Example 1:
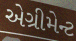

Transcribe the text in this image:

એગ્રીમેન્ટ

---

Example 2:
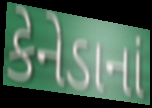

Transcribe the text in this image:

કેનેડાનાં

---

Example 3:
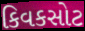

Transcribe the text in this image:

કિવકસોટ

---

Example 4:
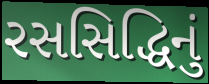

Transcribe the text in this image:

રસસિદ્ધિનું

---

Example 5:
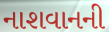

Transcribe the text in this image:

નાશવાનની